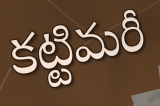
కట్టిమరీ